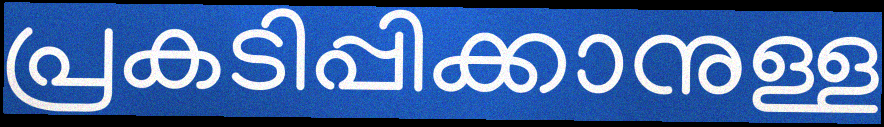
പ്രകടിപ്പിക്കാനുള്ള